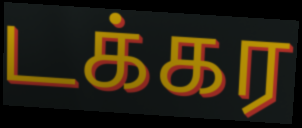
டக்கர